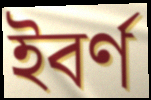
ইবৰ্ণ